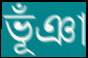
ভূঁঞা